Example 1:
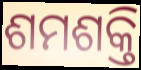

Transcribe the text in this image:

ଶମଶକ୍ତି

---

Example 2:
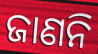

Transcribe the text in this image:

ଜାଣନି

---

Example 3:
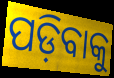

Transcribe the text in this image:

ପଡ଼ିବାକୁ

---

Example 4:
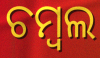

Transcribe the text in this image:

ଚମ୍ବଲ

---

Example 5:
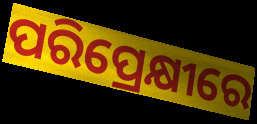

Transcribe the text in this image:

ପରିପ୍ରେକ୍ଷୀରେ